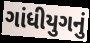
ગાંધીયુગનું